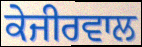
ਕੇਜੀਰਵਾਲ